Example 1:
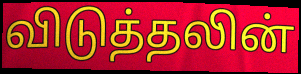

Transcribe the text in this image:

விடுத்தலின்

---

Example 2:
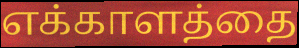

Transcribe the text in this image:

எக்காளத்தை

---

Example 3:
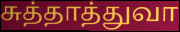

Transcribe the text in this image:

சுத்தாத்துவா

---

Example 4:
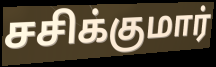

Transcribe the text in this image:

சசிக்குமார்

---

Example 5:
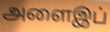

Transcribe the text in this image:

அளைஇப்